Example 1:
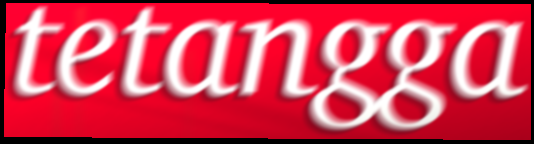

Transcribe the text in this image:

tetangga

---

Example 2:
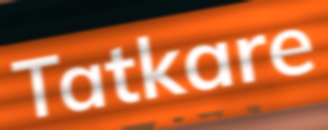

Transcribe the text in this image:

Tatkare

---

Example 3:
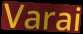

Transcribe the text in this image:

Varai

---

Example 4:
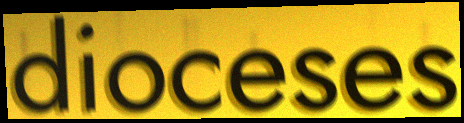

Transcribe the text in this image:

dioceses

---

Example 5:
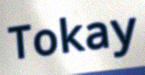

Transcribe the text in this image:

Tokay